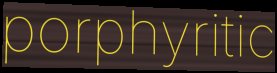
porphyritic